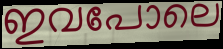
ഇവപോലെ